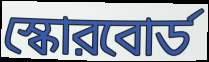
স্কোরবোর্ড